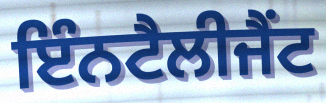
ਇੰਨਟੈਲੀਜੈਂਟ